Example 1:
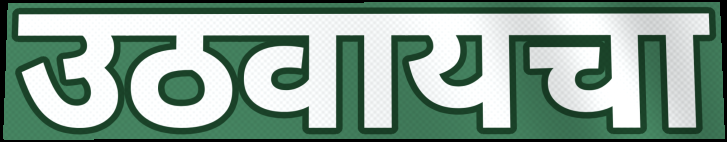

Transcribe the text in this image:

उठवायचा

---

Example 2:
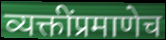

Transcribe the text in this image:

व्यक्तींप्रमाणेच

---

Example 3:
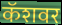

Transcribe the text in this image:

कॅशवर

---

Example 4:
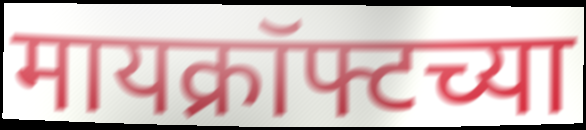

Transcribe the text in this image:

मायक्रॉफ्टच्या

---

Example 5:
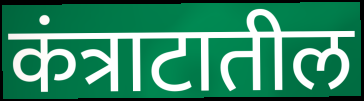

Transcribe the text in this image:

कंत्राटातील